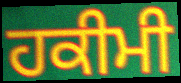
ਹਕੀਮੀ